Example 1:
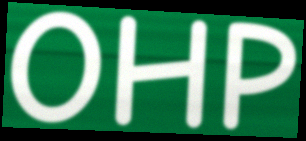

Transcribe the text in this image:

OHP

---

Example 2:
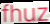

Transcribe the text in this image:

fhuz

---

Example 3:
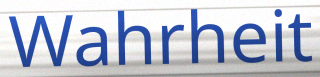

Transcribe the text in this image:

Wahrheit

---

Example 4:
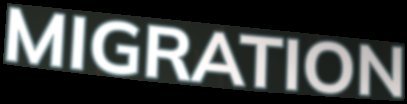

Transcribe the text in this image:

MIGRATION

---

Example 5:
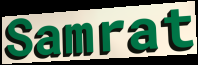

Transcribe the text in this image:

Samrat